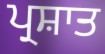
ਪ੍ਰਸ਼ਾਤ